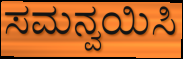
ಸಮನ್ವಯಿಸಿ